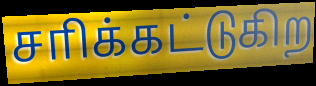
சரிக்கட்டுகிற